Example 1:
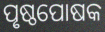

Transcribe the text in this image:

ପୃଷ୍ଠପୋଷକ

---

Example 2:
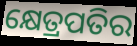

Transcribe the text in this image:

କ୍ଷେତ୍ରପତିର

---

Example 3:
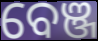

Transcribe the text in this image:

ବେଞ୍ଜ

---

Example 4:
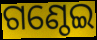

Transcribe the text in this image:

ଗଣ୍ଠେଇ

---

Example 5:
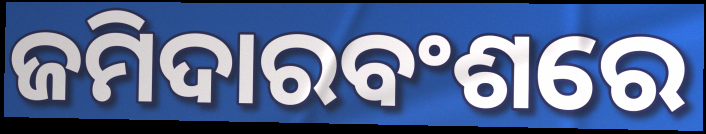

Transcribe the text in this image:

ଜମିଦାରବଂଶରେ